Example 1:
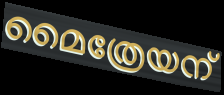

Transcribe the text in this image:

മൈത്രേയന്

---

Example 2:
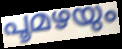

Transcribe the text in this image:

പൂമഴയും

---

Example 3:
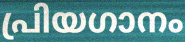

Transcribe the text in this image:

പ്രിയഗാനം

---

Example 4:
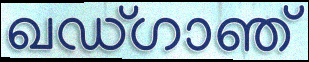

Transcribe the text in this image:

ഖഡ്ഗാഞ്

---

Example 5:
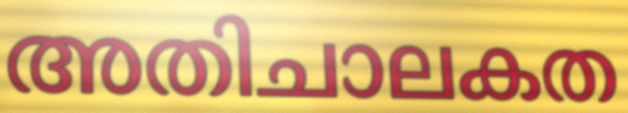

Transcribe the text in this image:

അതിചാലകത